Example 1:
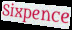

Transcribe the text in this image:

Sixpence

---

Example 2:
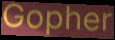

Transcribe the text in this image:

Gopher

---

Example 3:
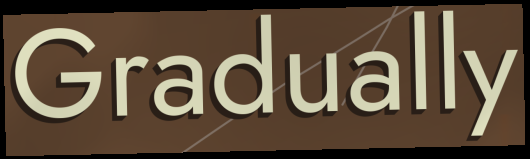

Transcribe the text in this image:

Gradually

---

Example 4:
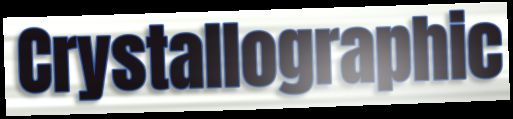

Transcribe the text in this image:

Crystallographic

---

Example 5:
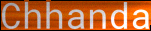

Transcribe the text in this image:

Chhanda